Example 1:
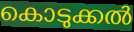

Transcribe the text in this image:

കൊടുക്കൽ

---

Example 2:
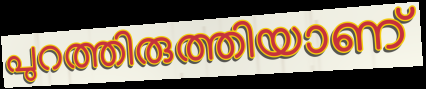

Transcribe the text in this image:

പുറത്തിരുത്തിയാണ്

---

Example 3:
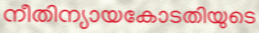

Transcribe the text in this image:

നീതിന്യായകോടതിയുടെ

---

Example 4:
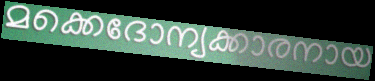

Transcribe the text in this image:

മക്കെദോന്യക്കാരനായ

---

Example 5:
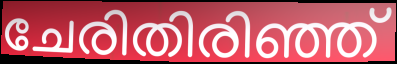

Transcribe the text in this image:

ചേരിതിരിഞ്ഞ്